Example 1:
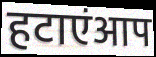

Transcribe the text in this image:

हटाएंआप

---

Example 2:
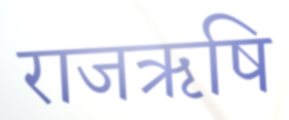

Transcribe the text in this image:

राजऋषि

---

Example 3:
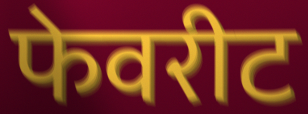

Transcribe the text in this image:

फेवरीट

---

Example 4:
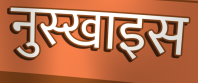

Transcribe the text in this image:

नुस्खाइस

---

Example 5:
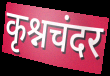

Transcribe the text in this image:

कृश्नचंदर